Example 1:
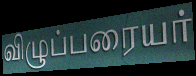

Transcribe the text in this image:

விழுப்பரையர்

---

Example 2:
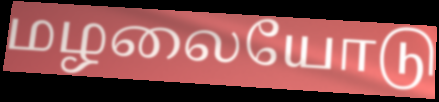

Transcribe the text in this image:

மழலையோடு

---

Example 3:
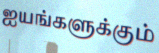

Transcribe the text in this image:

ஐயங்களுக்கும்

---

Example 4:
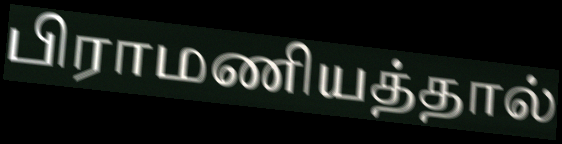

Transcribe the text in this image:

பிராமணியத்தால்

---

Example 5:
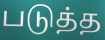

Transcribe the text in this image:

படுத்த